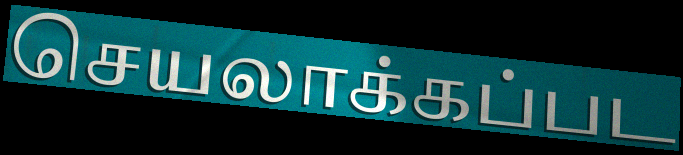
செயலாக்கப்பட